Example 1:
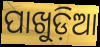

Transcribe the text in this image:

ପାଖୁଡ଼ିଆ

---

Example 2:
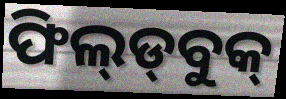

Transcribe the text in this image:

ଫିଲ୍‍ଡ୍‍ବୁକ୍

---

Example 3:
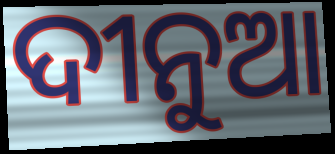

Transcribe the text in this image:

ଦୀନୁଆ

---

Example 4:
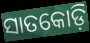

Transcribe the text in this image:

ସାତକୋଡ଼ି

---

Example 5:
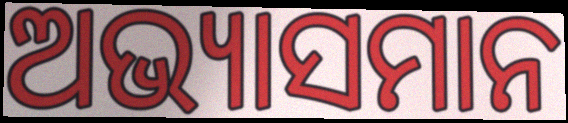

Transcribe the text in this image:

ଅଭ୍ୟାସମାନ